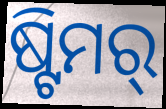
ଷ୍ଟିମର୍